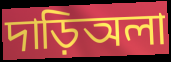
দাড়িঅলা